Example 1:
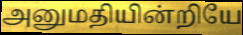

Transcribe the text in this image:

அனுமதியின்றியே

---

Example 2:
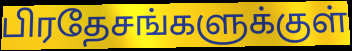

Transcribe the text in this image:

பிரதேசங்களுக்குள்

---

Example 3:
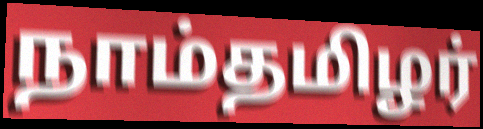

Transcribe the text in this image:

நாம்தமிழர்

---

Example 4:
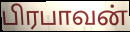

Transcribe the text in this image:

பிரபாவன்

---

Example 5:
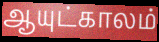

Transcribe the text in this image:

ஆயுட்காலம்